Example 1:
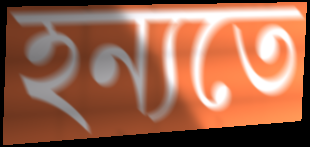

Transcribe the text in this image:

হন্যতে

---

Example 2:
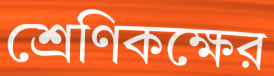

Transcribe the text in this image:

শ্রেণিকক্ষের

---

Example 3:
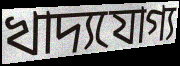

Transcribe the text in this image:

খাদ্যযোগ্য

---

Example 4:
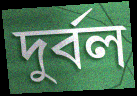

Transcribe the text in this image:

দুর্বল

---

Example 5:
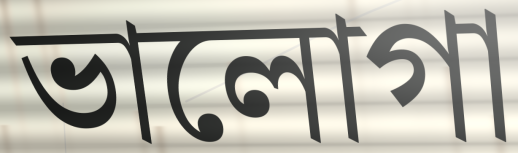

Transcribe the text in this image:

ভালোগা